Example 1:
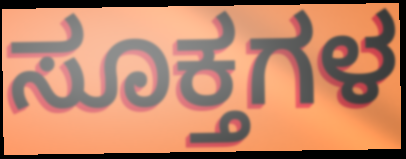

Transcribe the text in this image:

ಸೂಕ್ತಗಳ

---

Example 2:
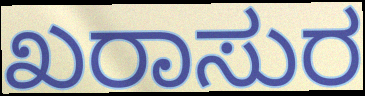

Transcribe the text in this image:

ಖರಾಸುರ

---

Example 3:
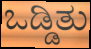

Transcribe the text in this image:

ಒಡ್ಡಿತು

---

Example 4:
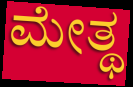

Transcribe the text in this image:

ಮೇತ್ಥ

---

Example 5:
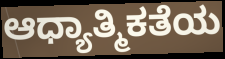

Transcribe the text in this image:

ಆಧ್ಯಾತ್ಮಿಕತೆಯ